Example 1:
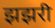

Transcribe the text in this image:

झझरी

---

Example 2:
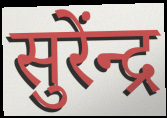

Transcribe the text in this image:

सुरेंन्द्र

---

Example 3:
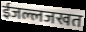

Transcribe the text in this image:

ईजल्लजखत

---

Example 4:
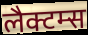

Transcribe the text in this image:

लैक्टम्स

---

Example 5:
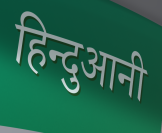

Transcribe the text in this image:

हिन्दुआनी